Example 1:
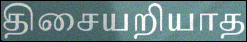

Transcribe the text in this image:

திசையறியாத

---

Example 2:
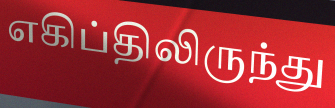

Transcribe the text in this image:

எகிப்திலிருந்து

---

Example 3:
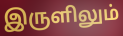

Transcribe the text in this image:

இருளிலும்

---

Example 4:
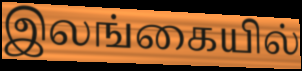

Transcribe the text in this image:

இலங்கையில்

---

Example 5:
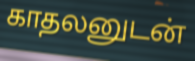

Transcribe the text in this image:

காதலனுடன்